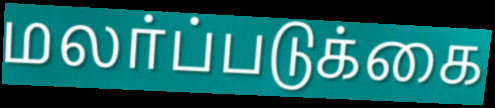
மலர்ப்படுக்கை